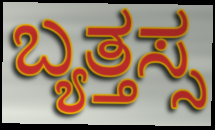
ಬ್ಯತ್ತಸ್ಸ